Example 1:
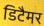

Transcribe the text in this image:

डिटैमर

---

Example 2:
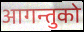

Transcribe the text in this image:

आगन्तुको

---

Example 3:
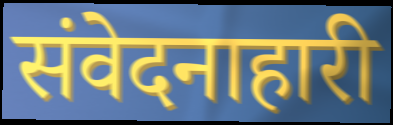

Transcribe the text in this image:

संवेदनाहारी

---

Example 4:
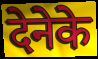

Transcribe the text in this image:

देनेके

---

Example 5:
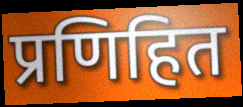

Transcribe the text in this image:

प्रणिहित